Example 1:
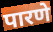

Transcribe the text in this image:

पारणे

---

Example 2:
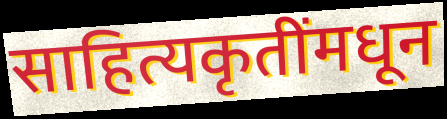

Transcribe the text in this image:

साहित्यकृतींमधून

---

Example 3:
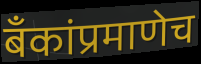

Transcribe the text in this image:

बॅंकांप्रमाणेच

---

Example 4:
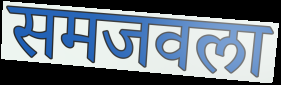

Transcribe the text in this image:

समजवला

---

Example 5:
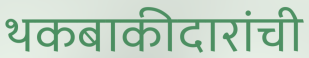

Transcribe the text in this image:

थकबाकीदारांची